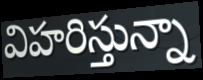
విహరిస్తున్నా